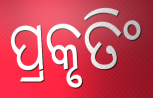
ପ୍ରକୃତିଂ